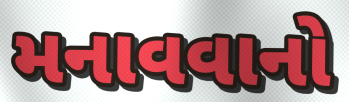
મનાવવાનો